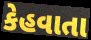
કેહવાતા